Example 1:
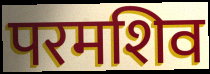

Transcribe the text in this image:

परमशिव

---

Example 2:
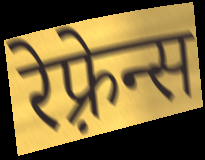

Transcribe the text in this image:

रेफ़्रेन्स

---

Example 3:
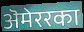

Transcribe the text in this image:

ऄमेररका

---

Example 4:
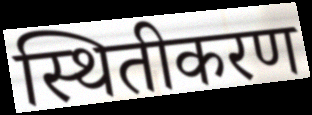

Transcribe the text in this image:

स्थितीकरण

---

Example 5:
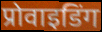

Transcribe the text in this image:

प्रोवाइडिंग